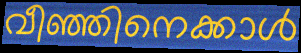
വീഞ്ഞിനെക്കാൾ